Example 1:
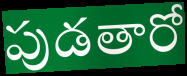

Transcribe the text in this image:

పుడతారో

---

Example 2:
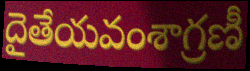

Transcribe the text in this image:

దైతేయవంశాగ్రణీ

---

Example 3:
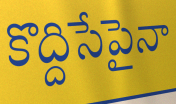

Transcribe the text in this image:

కొద్దిసేపైనా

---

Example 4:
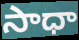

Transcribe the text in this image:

సాధా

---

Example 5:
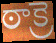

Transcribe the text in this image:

ఠాక్రె